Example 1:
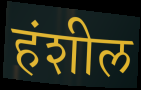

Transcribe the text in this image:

हंशील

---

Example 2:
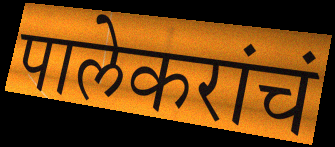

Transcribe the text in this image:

पालेकरांचं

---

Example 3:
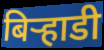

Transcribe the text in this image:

बिर्‍हाडी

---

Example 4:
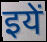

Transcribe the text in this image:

इयें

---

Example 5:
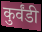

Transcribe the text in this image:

कुर्वंडी